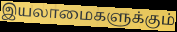
இயலாமைகளுக்கும்